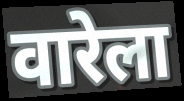
वारेला